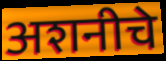
अशनीचे